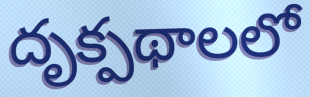
దృక్పథాలలో